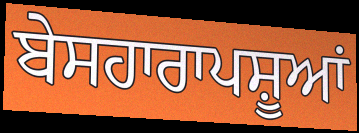
ਬੇਸਹਾਰਾਪਸ਼ੂਆਂ